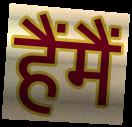
हैंमैं